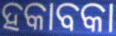
ହକାବକା